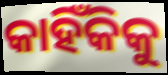
କାହିଁକିକୁ